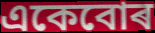
একেবোৰ